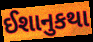
ઈશાનુકથા